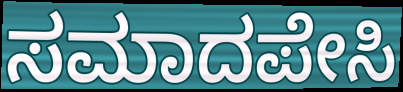
ಸಮಾದಪೇಸಿ